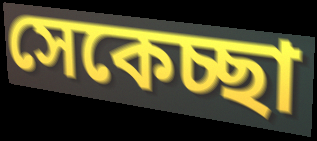
সেকেচ্ছা